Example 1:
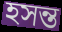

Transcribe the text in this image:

হসন্ত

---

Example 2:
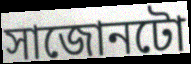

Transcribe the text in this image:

সাজোনটো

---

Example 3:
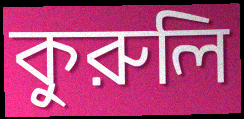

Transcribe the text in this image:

কুৰুলি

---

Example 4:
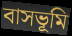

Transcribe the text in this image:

বাসভূমি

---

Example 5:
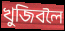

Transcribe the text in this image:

খুজিবলৈ